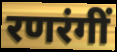
रणरंगीं